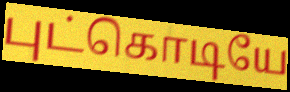
புட்கொடியே